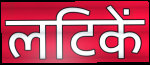
लटिकें